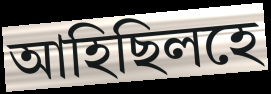
আহিছিলহে